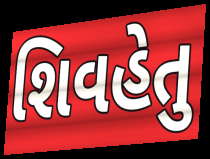
શિવહેતુ